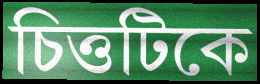
চিত্তটিকে